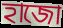
হাজো